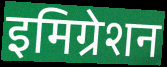
इमिग्रेशन